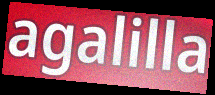
agalilla